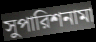
সুপারিশনামা